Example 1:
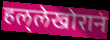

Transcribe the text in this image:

हल्लेखोरानं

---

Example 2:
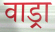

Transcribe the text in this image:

वाड्रा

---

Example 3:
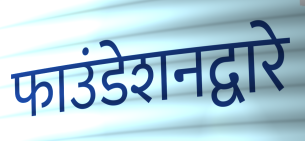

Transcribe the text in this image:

फाउंडेशनद्वारे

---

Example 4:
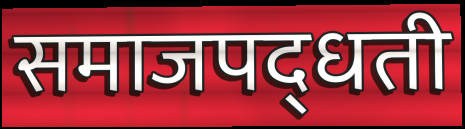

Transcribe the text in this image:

समाजपद्धती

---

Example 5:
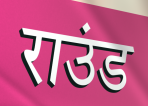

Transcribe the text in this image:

राउंड